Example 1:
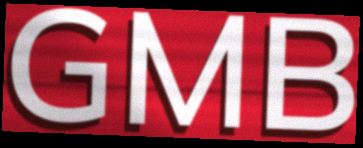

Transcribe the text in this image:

GMB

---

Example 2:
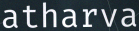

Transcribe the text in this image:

atharva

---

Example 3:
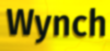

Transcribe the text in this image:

Wynch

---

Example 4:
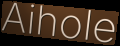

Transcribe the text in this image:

Aihole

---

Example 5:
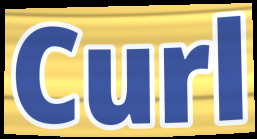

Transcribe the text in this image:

Curl